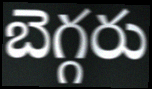
బెగ్గరు